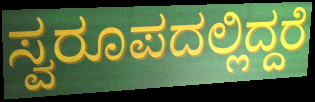
ಸ್ವರೂಪದಲ್ಲಿದ್ದರೆ